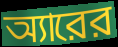
অ্যারের